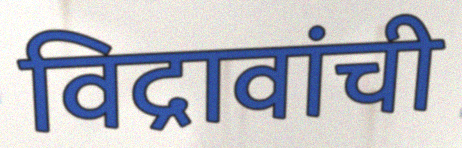
विद्रावांची